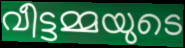
വീട്ടമ്മയുടെ